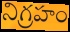
నిగ్రహం